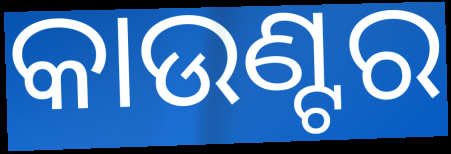
କାଉଣ୍ଟର